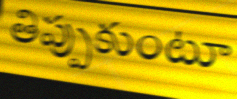
తిప్పుకుంటూ